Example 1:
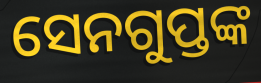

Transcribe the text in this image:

ସେନଗୁପ୍ତଙ୍କ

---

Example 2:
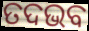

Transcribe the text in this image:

ତଦଭବ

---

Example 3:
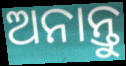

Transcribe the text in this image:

ଅନାନ୍ତୁ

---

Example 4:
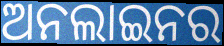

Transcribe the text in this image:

ଅନଲାଇନର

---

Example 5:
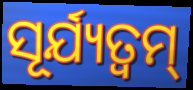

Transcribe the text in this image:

ସୂର୍ଯ୍ୟତ୍ୱମ୍